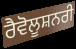
ਰੈਵੋਲੂਸ਼ਨਰੀ